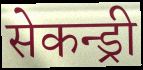
सेकन्ड्री